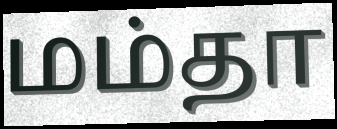
மம்தா